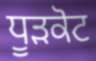
ਧੂੜਕੋਟ